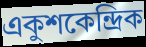
একুশকেন্দ্রিক